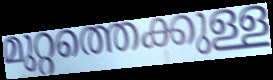
മുറ്റത്തെക്കുള്ള